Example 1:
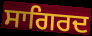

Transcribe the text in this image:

ਸਾਗਿਰਦ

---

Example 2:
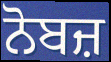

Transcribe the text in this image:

ਨੋਬਜ਼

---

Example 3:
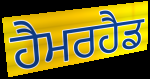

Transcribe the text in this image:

ਹੈਮਰਹੈਡ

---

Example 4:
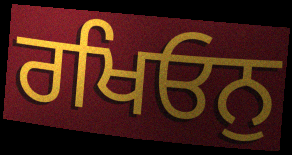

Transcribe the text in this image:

ਰਖਿਓਨੁ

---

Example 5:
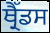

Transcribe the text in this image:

ਥ੍ਰੈੱਡਸ